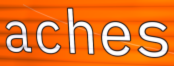
aches